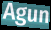
Agun